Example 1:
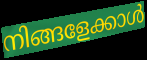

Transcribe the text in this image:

നിങ്ങളേക്കാൾ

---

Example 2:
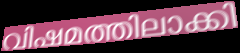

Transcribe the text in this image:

വിഷമത്തിലാക്കി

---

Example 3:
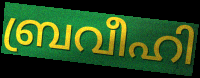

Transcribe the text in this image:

ബ്രവീഹി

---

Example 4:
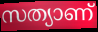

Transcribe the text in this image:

സത്യാണ്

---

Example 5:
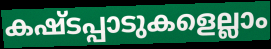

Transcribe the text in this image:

കഷ്ടപ്പാടുകളെല്ലാം